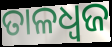
ତାଳଧ୍ୱଜ